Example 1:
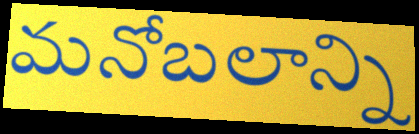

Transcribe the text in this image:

మనోబలాన్ని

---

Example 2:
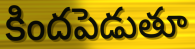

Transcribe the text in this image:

కిందపెడుతూ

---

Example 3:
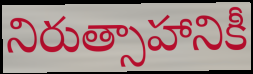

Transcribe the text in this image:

నిరుత్సాహానికీ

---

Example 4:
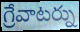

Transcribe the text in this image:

గ్రేవాటర్ను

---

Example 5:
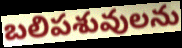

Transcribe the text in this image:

బలిపశువులను